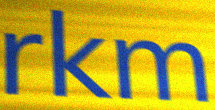
rkm